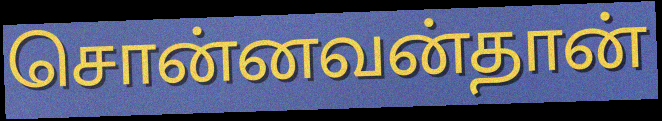
சொன்னவன்தான்